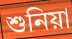
শুনিয়া